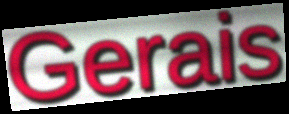
Gerais